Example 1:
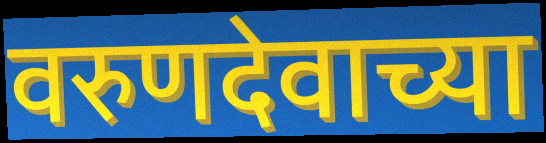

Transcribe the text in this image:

वरुणदेवाच्या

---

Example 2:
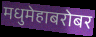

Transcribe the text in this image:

मधुमेहाबरोबर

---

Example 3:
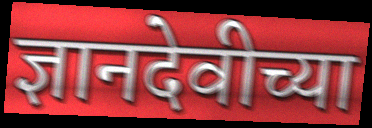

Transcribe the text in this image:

ज्ञानदेवीच्या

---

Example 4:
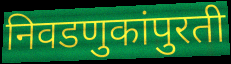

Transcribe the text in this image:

निवडणुकांपुरती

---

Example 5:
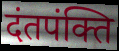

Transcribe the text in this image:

दंतपंक्ति